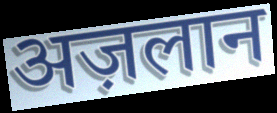
अज़लान